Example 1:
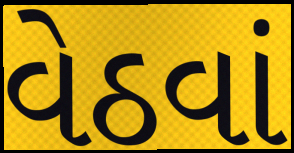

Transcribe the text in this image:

વેઠવાં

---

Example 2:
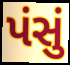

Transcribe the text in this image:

પંસું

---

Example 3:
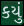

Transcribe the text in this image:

કયું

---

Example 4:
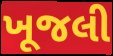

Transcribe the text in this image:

ખૂજલી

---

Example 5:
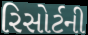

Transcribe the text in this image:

રિસોર્ટની